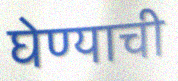
घेण्याची